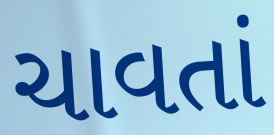
ચાવતાં